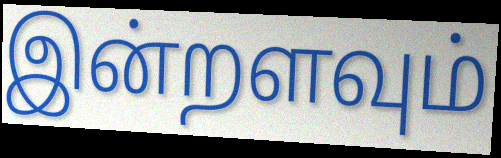
இன்றளவும்